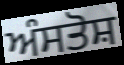
ਅੰਸਤੋਸ਼